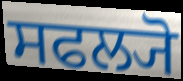
ਸਫਲ੍ਯੋ